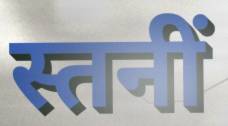
स्तनीं